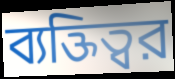
ব্যক্তিত্বর